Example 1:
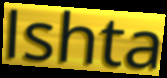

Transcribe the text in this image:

Ishta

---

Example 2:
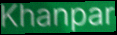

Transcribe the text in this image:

Khanpar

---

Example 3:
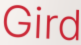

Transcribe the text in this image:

Gird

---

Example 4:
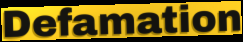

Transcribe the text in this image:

Defamation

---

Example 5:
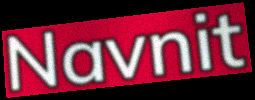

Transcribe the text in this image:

Navnit